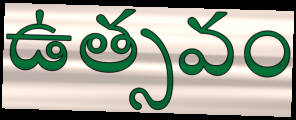
ఉత్సవం